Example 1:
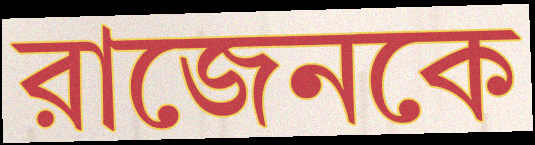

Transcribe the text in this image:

রাজেনকে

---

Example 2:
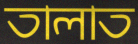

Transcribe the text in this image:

তালাত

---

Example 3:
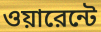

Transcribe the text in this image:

ওয়ারেন্টে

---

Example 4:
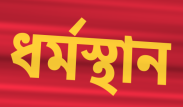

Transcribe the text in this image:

ধর্মস্থান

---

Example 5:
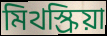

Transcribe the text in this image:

মিথস্ক্রিয়া